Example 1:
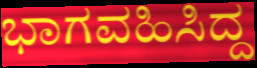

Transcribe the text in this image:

ಭಾಗವಹಿಸಿದ್ದ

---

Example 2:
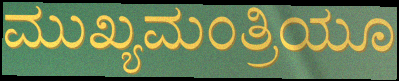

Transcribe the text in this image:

ಮುಖ್ಯಮಂತ್ರಿಯೂ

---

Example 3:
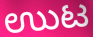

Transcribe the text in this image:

ಉುಟ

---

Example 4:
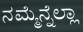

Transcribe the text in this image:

ನಮ್ಮೆನ್ನೆಲ್ಲಾ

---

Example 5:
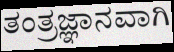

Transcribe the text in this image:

ತಂತ್ರಜ್ಞಾನವಾಗಿ